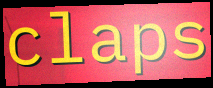
claps